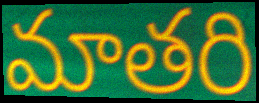
మాతరి